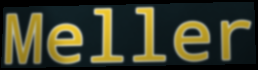
Meller